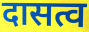
दासत्व